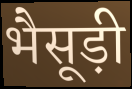
भैसूड़ी